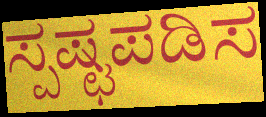
ಸ್ಪಷ್ಟಪಡಿಸ